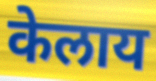
केलाय